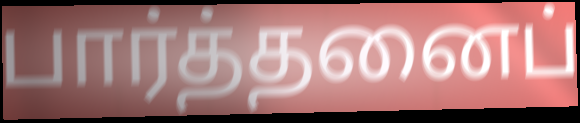
பார்த்தனைப்